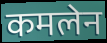
कमलेन